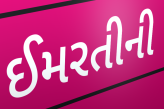
ઈમરતીની